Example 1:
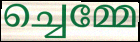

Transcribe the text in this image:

ച്ചെമ്മേ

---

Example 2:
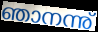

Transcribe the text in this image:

ഞാനന്നു്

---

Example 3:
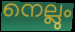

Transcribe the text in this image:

നെല്ലും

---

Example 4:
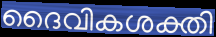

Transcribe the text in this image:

ദൈവികശക്തി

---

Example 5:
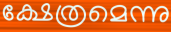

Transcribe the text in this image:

ക്ഷേത്രമെന്നു